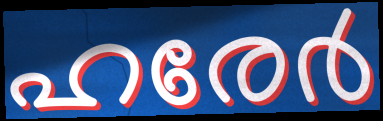
ഹരേർ